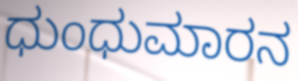
ಧುಂಧುಮಾರನ